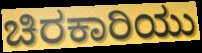
ಚಿರಕಾರಿಯು